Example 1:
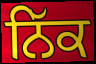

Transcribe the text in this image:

ਨਿੱਕ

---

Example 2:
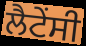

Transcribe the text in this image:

ਲੈਟੇਂਸੀ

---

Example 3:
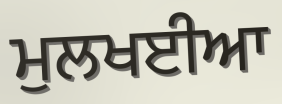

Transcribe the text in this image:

ਮੁਲਖਈਆ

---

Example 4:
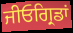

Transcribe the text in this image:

ਜੀਓਗ੍ਰਿਡਾਂ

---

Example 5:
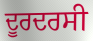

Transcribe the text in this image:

ਦੂਰਦਰਸੀ